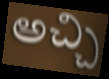
అచ్చి